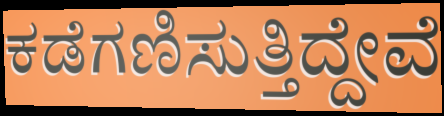
ಕಡೆಗಣಿಸುತ್ತಿದ್ದೇವೆ